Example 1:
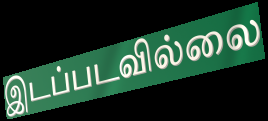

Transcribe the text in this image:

இடப்படவில்லை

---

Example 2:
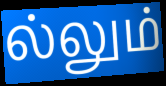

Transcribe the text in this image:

ல்லும்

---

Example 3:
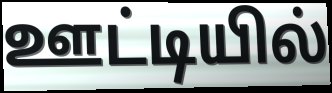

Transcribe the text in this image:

ஊட்டியில்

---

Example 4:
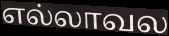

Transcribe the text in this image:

எல்லாவல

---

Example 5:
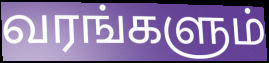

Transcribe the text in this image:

வரங்களும்